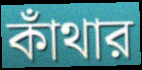
কাঁথার